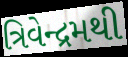
ત્રિવેન્દ્રમથી